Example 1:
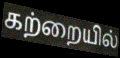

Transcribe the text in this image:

கற்றையில்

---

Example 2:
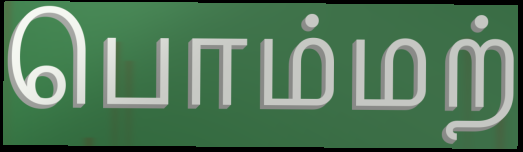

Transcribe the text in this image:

பொம்மற்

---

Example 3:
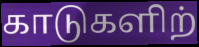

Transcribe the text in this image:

காடுகளிற்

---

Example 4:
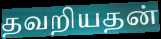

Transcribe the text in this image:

தவறியதன்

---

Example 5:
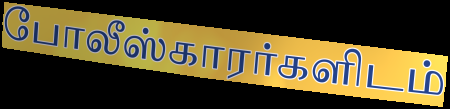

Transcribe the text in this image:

போலீஸ்காரர்களிடம்